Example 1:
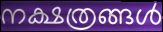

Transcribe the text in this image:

നക്ഷത്രങ്ങൾ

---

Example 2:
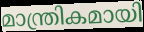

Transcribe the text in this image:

മാന്ത്രികമായി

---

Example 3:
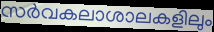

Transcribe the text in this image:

സർവകലാശാലകളിലും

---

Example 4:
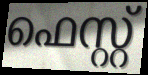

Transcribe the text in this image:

ഫെസ്റ്റ്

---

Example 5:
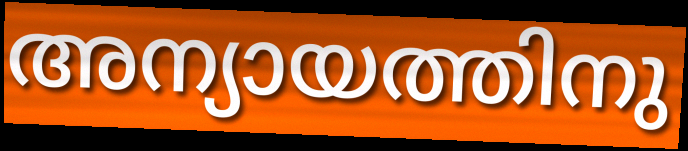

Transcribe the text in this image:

അന്യായത്തിനു